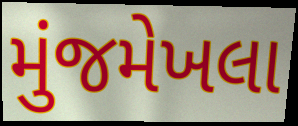
મુંજમેખલા